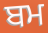
ਬਮ